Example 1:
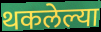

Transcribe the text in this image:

थकलेल्या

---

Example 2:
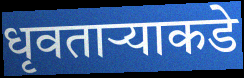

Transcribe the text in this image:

धृवतार्‍याकडे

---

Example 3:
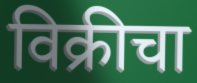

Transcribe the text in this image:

विक्रीचा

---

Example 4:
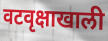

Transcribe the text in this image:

वटवृक्षाखाली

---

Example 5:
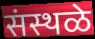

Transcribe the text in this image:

संस्थळे